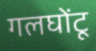
गलघोंटू